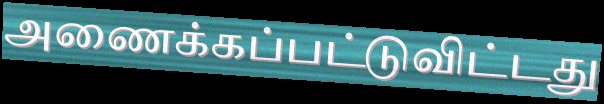
அணைக்கப்பட்டுவிட்டது